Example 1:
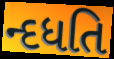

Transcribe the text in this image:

ન્દધતિ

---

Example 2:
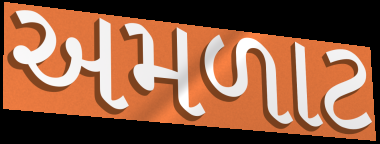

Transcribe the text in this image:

અમળાટ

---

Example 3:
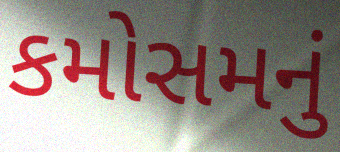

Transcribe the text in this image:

કમોસમનું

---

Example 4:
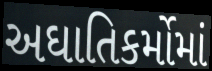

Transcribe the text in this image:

અઘાતિકર્મોમાં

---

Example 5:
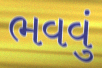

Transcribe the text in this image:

ભવવું